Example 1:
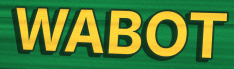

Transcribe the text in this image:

WABOT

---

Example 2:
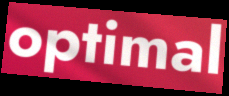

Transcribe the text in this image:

optimal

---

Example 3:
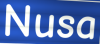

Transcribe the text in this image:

Nusa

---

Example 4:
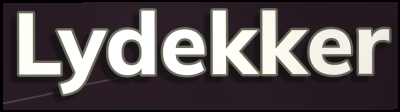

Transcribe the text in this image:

Lydekker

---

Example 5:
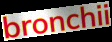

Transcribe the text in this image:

bronchii